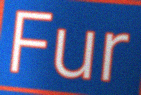
Fur